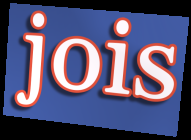
jois